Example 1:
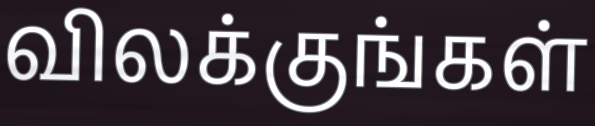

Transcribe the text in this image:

விலக்குங்கள்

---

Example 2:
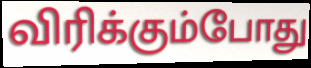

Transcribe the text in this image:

விரிக்கும்போது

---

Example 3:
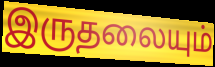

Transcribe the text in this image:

இருதலையும்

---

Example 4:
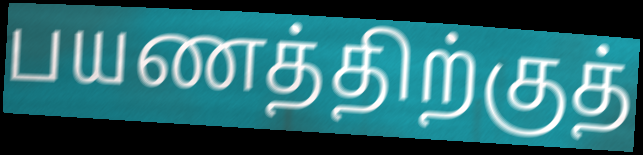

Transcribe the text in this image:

பயணத்திற்குத்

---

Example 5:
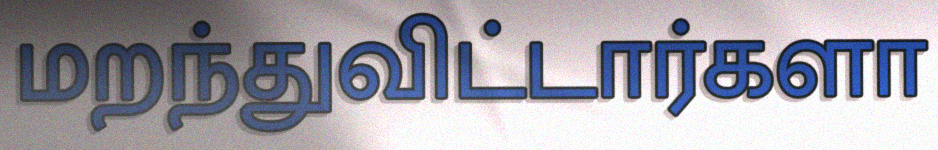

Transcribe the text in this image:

மறந்துவிட்டார்களா